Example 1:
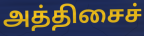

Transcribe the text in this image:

அத்திசைச்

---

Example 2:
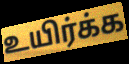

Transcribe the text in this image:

உயிர்க்க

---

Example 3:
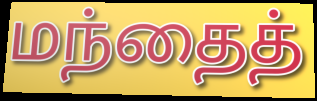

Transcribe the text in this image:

மந்தைத்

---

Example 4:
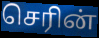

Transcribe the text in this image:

செரின்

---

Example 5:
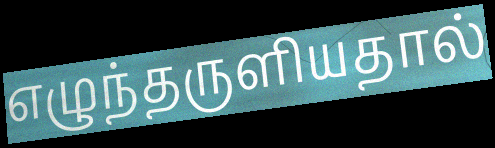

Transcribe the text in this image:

எழுந்தருளியதால்